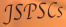
JSPSCs